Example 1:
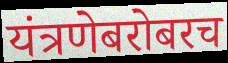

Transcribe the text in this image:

यंत्रणेबरोबरच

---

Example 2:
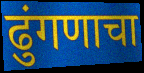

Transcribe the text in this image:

ढुंगणाचा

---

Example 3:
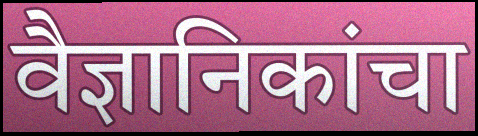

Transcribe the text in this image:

वैज्ञानिकांचा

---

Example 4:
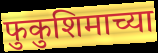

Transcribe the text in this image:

फुकुशिमाच्या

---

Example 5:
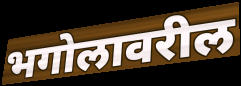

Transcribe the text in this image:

भगोलावरील